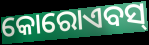
କୋରୋଏବସ୍